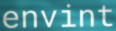
envint